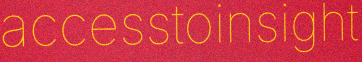
accesstoinsight